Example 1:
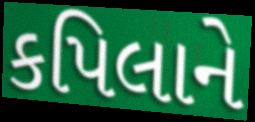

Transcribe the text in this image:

કપિલાને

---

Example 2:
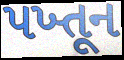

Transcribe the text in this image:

પખ્તૂન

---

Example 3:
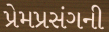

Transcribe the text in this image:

પ્રેમપ્રસંગની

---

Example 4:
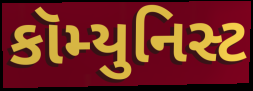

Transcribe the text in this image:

કૉમ્યુનિસ્ટ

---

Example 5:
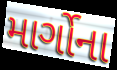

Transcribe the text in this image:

માર્ગોના